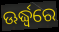
ଊର୍ଦ୍ଧ୍ୱରେ